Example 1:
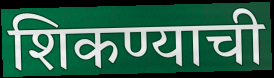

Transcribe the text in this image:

शिकण्याची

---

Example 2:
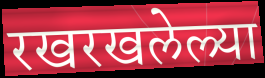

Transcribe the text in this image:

रखरखलेल्या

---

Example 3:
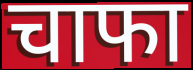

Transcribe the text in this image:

चाफा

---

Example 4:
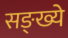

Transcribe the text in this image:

सङ्ख्ये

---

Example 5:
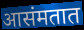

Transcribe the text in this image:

आसंमतात